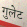
गुलेट